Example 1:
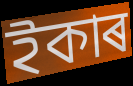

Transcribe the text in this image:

ইকাৰ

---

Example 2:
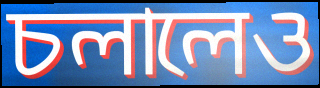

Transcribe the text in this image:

চলালেও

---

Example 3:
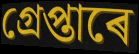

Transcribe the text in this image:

গ্ৰেপ্তাৰে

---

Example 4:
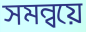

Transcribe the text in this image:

সমন্বয়ে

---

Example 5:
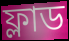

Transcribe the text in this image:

ফ্লাড